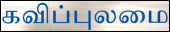
கவிப்புலமை